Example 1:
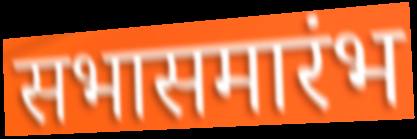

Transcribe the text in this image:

सभासमारंभ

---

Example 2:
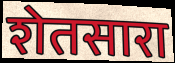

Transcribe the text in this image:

शेतसारा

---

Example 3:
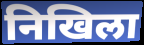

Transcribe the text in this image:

निखिला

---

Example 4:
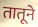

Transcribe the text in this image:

तातूने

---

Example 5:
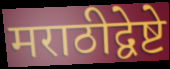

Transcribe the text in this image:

मराठीद्वेष्टे